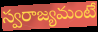
స్వరాజ్యమంటే